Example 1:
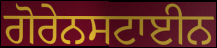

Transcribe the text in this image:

ਗੋਰੇਨਸਟਾਈਨ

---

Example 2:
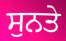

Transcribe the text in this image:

ਸੁਨਤੇ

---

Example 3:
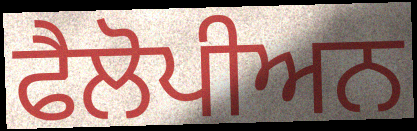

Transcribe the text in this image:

ਫੈਲੋਪੀਅਨ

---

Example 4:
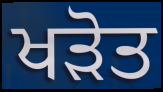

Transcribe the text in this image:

ਖੜੋਤ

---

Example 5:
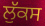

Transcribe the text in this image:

ਲੁੱਕਸ